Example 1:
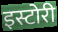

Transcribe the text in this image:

इस्टोरी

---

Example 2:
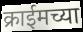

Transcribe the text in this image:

क्राईमच्या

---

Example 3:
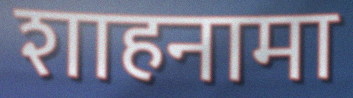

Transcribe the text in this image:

शाहनामा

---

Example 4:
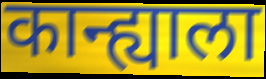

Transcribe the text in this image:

कान्ह्याला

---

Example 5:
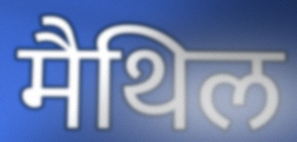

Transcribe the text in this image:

मैथिल